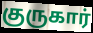
குருகார்